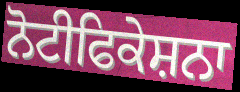
ਨੋਟੀਫਿਕੇਸ਼ਨਾ